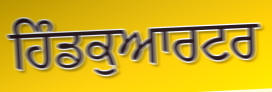
ਹਿੰਡਕੁਆਰਟਰ